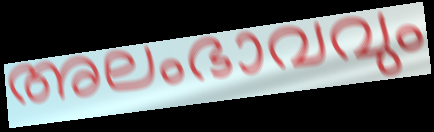
അലംഭാവവും